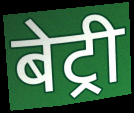
बेट्री